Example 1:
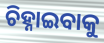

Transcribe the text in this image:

ଚିହ୍ନାଇବାକୁ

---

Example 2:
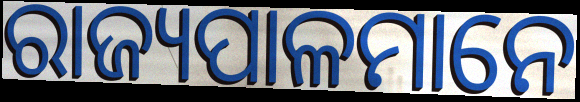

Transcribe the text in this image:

ରାଜ୍ୟପାଳମାନେ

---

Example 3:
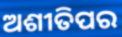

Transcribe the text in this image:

ଅଶୀତିପର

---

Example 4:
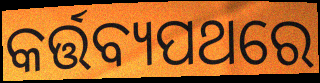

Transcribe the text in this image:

କର୍ତ୍ତବ୍ୟପଥରେ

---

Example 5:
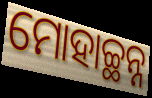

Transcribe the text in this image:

ମୋହାଚ୍ଛନ୍ନ